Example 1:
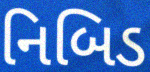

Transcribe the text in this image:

નિબિડ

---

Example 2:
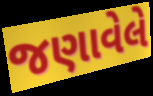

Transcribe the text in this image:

જણાવેલે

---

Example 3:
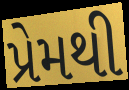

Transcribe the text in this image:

પ્રેમથી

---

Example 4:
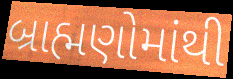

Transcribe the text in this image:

બ્રાહ્મણોમાંથી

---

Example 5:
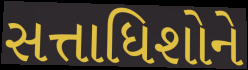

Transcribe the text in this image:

સત્તાધિશોને